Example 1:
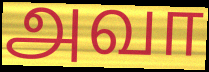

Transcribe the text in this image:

அவா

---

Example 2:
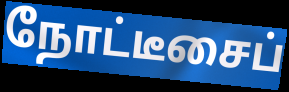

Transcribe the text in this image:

நோட்டீசைப்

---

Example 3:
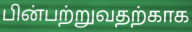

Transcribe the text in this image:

பின்பற்றுவதற்காக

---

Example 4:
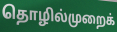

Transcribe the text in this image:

தொழில்முறைக்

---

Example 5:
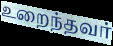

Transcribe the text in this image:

உறைந்தவர்